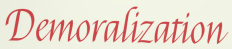
Demoralization